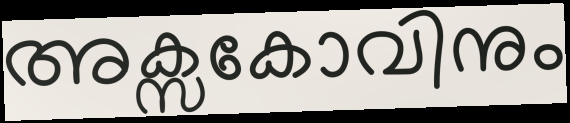
അക്സകോവിനും